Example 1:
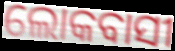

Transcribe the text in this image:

ଲୋକବାସୀ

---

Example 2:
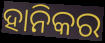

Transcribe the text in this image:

ହାନିକର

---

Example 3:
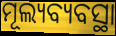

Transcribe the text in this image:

ମୂଲ୍ୟବ୍ୟବସ୍ଥା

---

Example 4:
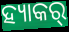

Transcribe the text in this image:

ହ୍ୟାକର୍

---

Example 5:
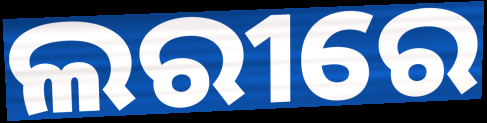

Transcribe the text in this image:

ଲରୀରେ